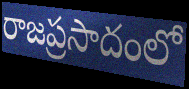
రాజప్రసాదంలో